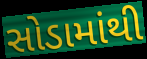
સોડામાંથી